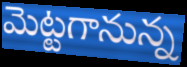
మెట్టగానున్న